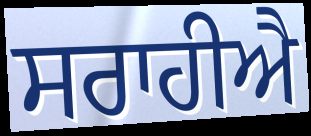
ਸਰਾਹੀਐ